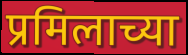
प्रमिलाच्या